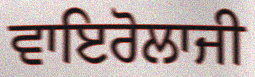
ਵਾਇਰੋਲਾਜੀ